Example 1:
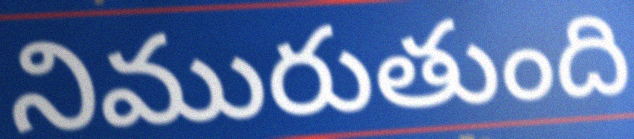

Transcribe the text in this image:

నిమురుతుంది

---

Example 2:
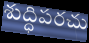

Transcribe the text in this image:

శుద్ధిపరచు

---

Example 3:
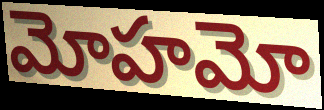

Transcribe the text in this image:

మోహమో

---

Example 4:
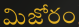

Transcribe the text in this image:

మిజోరం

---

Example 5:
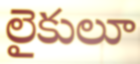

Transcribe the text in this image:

లైకులూ